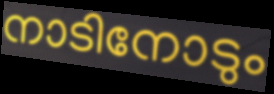
നാടിനോടും